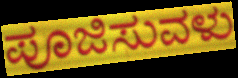
ಪೂಜಿಸುವಳು